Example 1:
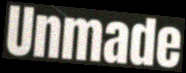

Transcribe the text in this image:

Unmade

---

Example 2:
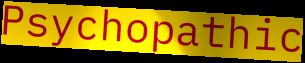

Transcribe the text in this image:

Psychopathic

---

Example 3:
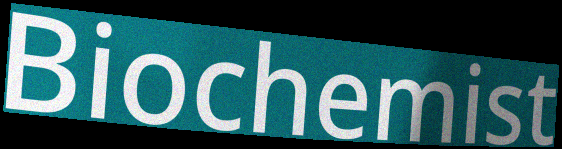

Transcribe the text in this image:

Biochemist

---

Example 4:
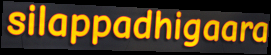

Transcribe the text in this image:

silappadhigaara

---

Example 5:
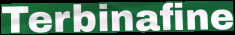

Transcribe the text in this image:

Terbinafine